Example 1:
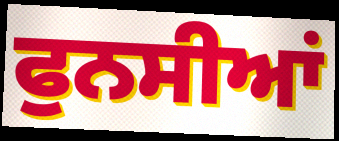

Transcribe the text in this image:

ਫੁਨਸੀਆਂ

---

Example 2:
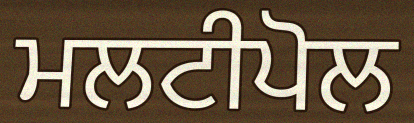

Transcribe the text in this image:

ਮਲਟੀਪੋਲ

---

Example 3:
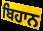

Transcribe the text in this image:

ਬਿਹਾਨ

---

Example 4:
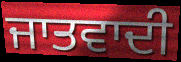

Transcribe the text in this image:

ਜਾਤਵਾਦੀ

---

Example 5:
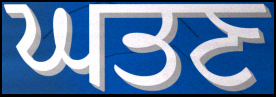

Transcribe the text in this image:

ਘਤਣ